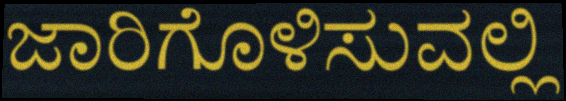
ಜಾರಿಗೊಳಿಸುವಲ್ಲಿ